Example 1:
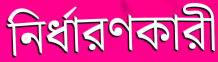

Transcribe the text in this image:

নির্ধারণকারী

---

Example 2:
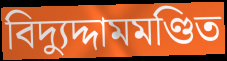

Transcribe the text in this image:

বিদ্যুদ্দামমণ্ডিত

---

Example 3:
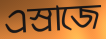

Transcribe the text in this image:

এস্রাজে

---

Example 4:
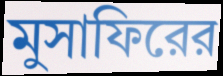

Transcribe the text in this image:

মুসাফিরের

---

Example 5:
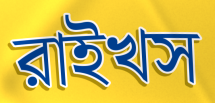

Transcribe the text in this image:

রাইখস